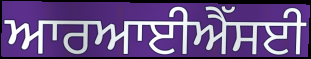
ਆਰਆਈਐੱਸਈ